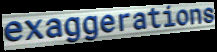
exaggerations